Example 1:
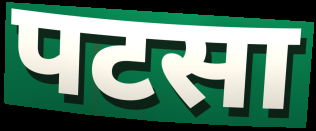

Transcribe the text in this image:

पटसा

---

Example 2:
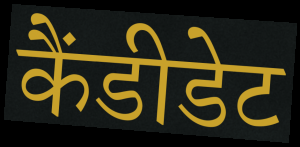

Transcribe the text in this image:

कैंडीडेट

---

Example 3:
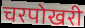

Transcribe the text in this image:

चरपोखरी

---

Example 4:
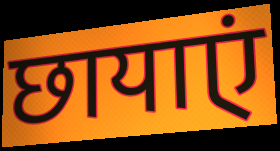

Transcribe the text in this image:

छायाएं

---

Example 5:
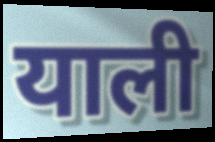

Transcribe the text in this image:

याली